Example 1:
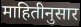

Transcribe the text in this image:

माहितीनुसार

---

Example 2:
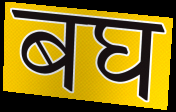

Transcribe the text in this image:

बघ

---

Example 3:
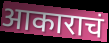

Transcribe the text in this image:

आकाराचं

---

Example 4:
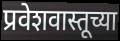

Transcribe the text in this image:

प्रवेशवास्तूच्या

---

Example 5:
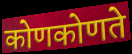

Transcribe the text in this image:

कोणकोणते